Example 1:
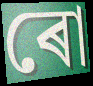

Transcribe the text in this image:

ৰো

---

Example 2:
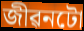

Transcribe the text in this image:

জীৱনটো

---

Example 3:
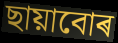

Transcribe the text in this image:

ছায়াবোৰ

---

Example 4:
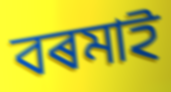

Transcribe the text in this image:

বৰমাই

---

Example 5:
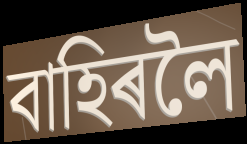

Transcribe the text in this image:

বাহিৰলৈ